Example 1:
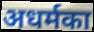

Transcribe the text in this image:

अधर्मका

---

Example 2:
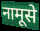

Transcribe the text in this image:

नामूसे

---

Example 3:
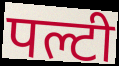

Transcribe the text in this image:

पल्टी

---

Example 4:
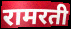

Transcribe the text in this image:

रामरती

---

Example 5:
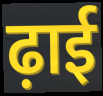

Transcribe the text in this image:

ढ़ाई